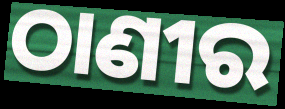
ଠାଣୀର